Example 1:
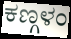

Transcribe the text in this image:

ಕಣ್ಗಳಂ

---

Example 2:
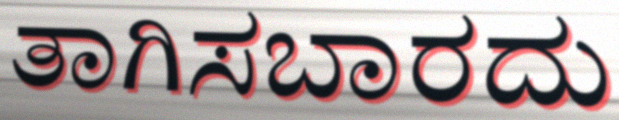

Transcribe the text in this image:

ತಾಗಿಸಬಾರದು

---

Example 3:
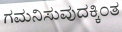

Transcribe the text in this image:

ಗಮನಿಸುವುದಕ್ಕಿಂತ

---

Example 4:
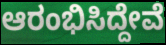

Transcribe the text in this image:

ಆರಂಭಿಸಿದ್ದೇವೆ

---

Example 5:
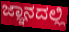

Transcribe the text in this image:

ಜ್ಞಾನದಲ್ಲಿ